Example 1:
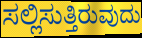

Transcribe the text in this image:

ಸಲ್ಲಿಸುತ್ತಿರುವುದು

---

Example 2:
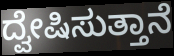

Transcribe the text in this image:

ದ್ವೇಷಿಸುತ್ತಾನೆ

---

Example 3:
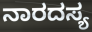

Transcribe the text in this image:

ನಾರದಸ್ಯ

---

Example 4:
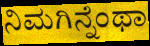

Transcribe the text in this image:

ನಿಮಗಿನ್ನೆಂಥಾ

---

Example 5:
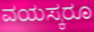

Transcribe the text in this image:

ವಯಸ್ಕರೂ